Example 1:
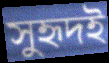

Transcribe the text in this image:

সুহৃদই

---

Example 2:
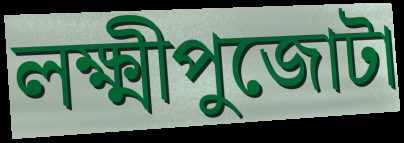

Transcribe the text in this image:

লক্ষ্মীপুজোটা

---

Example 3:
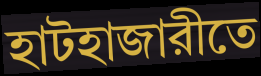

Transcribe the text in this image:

হাটহাজারীতে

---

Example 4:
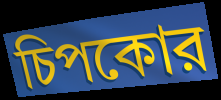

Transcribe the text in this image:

চিপকোর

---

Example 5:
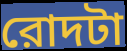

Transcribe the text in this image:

রোদটা